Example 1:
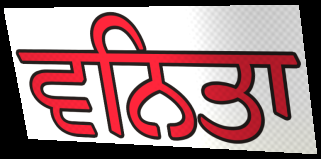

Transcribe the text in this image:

ਵਨਿਤਾ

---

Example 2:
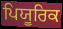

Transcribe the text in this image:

ਪਿਯੂਰਿਕ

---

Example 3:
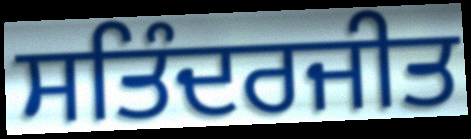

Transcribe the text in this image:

ਸਤਿੰਦਰਜੀਤ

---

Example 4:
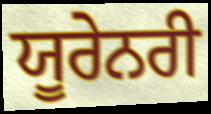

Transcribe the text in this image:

ਯੂਰੇਨਰੀ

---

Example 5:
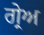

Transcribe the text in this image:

ਗ੍ਰੇਅ